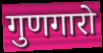
गुणगारो